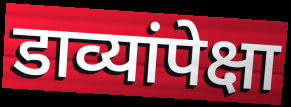
डाव्यांपेक्षा